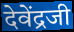
देवेंद्रजी